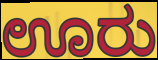
ಊರು